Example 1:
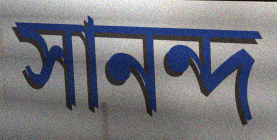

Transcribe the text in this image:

সানন্দ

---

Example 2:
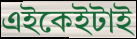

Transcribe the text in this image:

এইকেইটাই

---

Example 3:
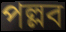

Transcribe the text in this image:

পল্লব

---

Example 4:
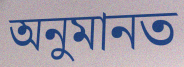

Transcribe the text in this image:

অনুমানত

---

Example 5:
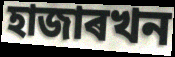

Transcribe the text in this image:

হাজাৰখন